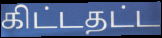
கிட்டதட்ட